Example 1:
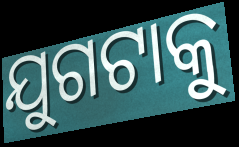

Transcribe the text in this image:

ଯୁଗଟାକୁ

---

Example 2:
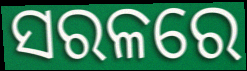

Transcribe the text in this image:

ସରଳରେ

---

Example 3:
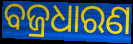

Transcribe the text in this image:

ବଜ୍ରଧାରଣ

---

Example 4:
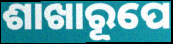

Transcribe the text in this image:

ଶାଖାରୂପେ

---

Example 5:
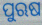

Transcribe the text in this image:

ପୁଋଷ